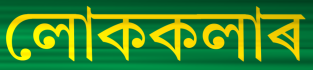
লোককলাৰ